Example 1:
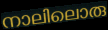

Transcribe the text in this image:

നാലിലൊരു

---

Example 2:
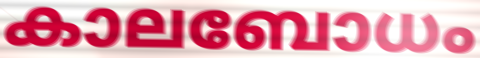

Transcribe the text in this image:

കാലബോധം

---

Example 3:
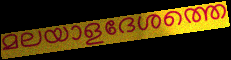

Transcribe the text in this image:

മലയാളദേശത്തെ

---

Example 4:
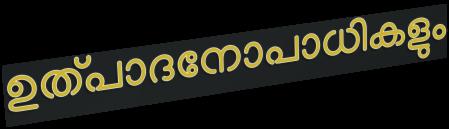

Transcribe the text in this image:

ഉത്പാദനോപാധികളും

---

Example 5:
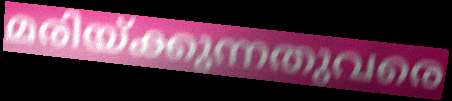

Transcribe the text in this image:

മരിയ്ക്കുന്നതുവരെ